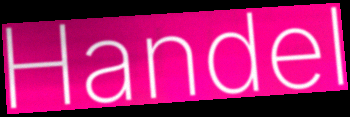
Handel